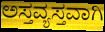
ಅಸ್ತವ್ಯಸ್ತವಾಗಿ